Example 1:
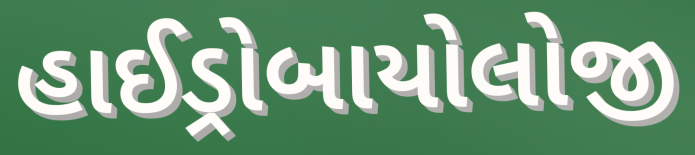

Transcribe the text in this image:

હાઈડ્રોબાયોલોજી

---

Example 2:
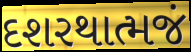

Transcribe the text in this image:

દશરથાત્મજં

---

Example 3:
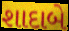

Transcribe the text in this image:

શાદાબે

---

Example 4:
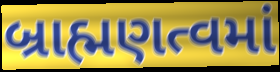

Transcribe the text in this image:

બ્રાહ્મણત્વમાં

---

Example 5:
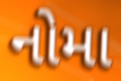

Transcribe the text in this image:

નોમા